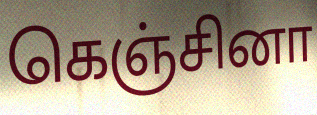
கெஞ்சினா